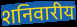
शनिवारीय